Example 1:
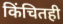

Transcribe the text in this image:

किंचितही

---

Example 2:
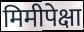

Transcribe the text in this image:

मिमीपेक्षा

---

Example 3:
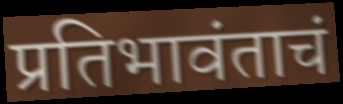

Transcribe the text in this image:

प्रतिभावंताचं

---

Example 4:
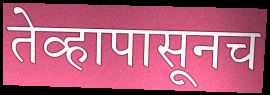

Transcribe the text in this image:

तेव्हापासूनच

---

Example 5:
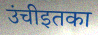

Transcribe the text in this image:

उंचीइतका